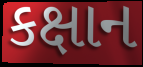
કક્ષાન